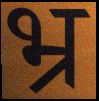
भ्र